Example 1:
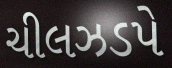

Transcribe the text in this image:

ચીલઝડપે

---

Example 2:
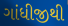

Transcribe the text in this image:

ગાંધીજીથી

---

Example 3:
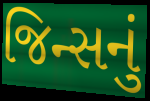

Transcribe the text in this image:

જિન્સનું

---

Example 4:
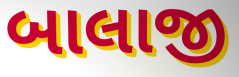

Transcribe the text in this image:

બાલાજી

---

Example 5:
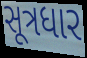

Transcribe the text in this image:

સૂત્રધાર